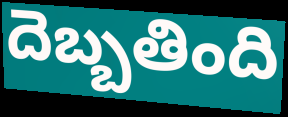
దెబ్బతింది